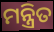
ମନ୍ତ୍ରିତ